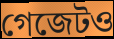
গেজেটও